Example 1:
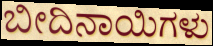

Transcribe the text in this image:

ಬೀದಿನಾಯಿಗಳು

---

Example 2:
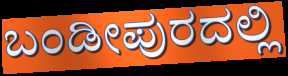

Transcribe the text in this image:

ಬಂಡೀಪುರದಲ್ಲಿ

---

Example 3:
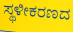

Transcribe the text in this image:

ಸ್ಥಳೀಕರಣದ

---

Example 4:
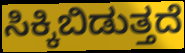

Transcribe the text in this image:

ಸಿಕ್ಕಿಬಿಡುತ್ತದೆ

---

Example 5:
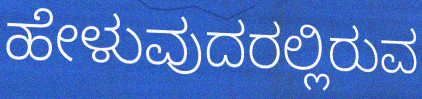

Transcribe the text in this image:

ಹೇಳುವುದರಲ್ಲಿರುವ